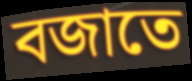
বজাতে